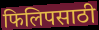
फिलिपसाठी